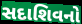
સદાશિવનો